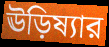
ঊড়িষ্যার